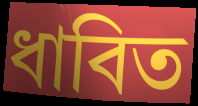
ধাবিত